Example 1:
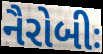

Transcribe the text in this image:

નૈરોબીઃ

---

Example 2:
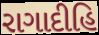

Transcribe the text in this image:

રાગાદીહિ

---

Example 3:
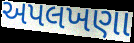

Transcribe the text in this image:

અપલખણા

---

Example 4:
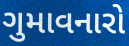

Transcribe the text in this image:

ગુમાવનારો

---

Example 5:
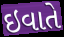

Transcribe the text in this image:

ઇવાતે